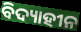
ବିଦ୍ୟାହୀନ